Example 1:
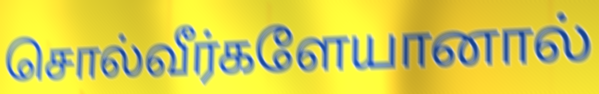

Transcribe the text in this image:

சொல்வீர்களேயானால்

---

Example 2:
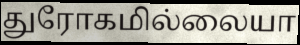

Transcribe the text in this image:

துரோகமில்லையா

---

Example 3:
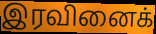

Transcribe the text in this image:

இரவினைக்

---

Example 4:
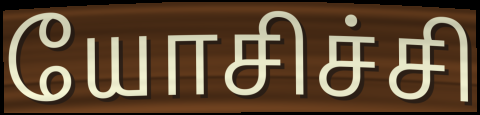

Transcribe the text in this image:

யோசிச்சி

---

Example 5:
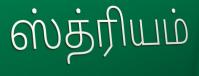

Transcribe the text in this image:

ஸ்த்ரியம்